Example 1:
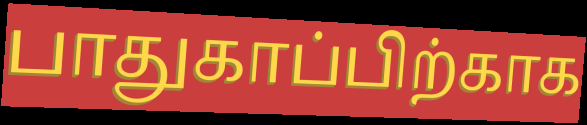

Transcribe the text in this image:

பாதுகாப்பிற்காக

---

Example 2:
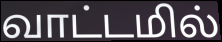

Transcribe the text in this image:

வாட்டமில்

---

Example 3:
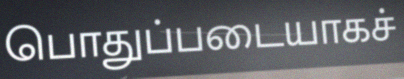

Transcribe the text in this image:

பொதுப்படையாகச்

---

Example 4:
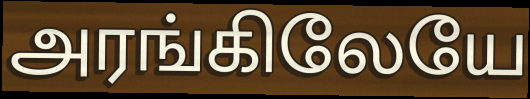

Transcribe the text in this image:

அரங்கிலேயே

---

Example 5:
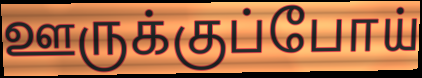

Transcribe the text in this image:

ஊருக்குப்போய்